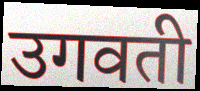
उगवती